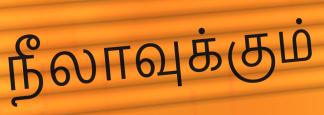
நீலாவுக்கும்